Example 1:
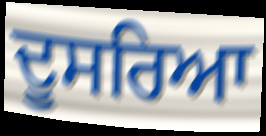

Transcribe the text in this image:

ਦੂਸਰਿਆ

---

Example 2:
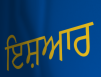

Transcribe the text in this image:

ਇਸ਼ਆਰ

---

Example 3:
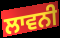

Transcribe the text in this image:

ਲਾਵਨੀ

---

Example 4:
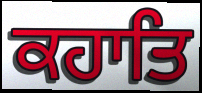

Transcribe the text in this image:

ਕਹਾਤਿ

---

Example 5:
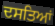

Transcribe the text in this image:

ਦਸਤਿਆਂ